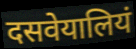
दसवेयालियं